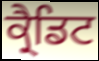
ਕ੍ਰੈਡਿਟ